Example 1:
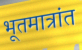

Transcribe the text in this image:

भूतमात्रांत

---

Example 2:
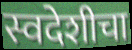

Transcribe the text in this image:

स्वदेशीचा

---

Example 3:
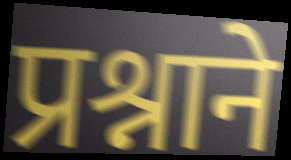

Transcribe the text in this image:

प्रश्नाने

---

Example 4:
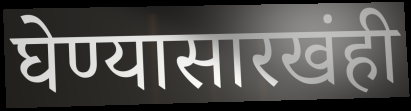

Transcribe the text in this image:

घेण्यासारखंही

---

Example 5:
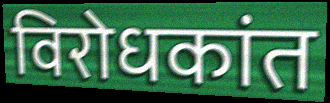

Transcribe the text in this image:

विरोधकांत